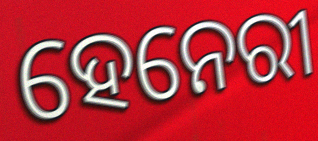
ହେନେରୀ